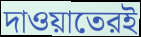
দাওয়াতেরই